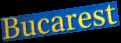
Bucarest